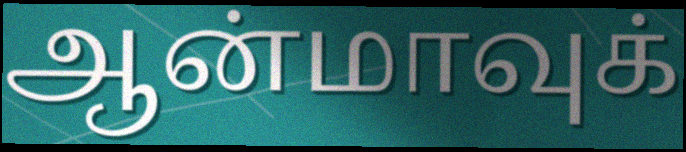
ஆன்மாவுக்